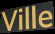
Ville